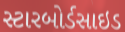
સ્ટારબોર્ડસાઇડ